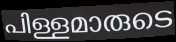
പിള്ളമാരുടെ